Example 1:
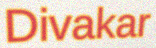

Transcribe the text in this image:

Divakar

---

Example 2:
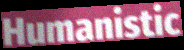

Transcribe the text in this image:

Humanistic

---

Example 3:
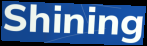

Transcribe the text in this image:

Shining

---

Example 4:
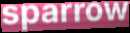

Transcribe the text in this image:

sparrow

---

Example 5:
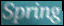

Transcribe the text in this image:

Spring